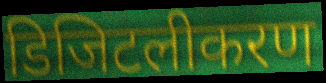
डिजिटलीकरण